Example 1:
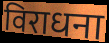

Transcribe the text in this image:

विराधना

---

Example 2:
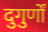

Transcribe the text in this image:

दुगुर्णों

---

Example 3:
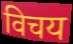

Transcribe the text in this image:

विचय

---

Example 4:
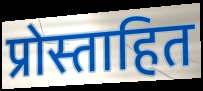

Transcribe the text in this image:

प्रोस्ताहित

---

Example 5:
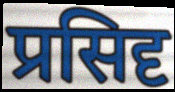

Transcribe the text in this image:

प्रसिदृ